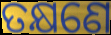
ତକ୍ଷଣେ